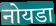
नोयडा